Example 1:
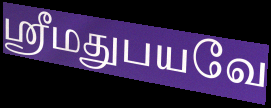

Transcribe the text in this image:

ஸ்ரீமதுபயவே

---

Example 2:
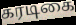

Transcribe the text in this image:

கரடிகை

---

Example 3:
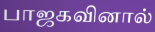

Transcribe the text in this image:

பாஜகவினால்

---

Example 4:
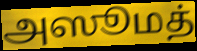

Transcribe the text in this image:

அஸூமத்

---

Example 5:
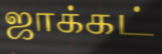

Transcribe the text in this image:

ஜாக்கட்